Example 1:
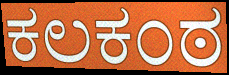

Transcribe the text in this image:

ಕಲಕಂಠ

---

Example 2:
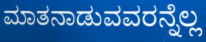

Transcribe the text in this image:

ಮಾತನಾಡುವವರನ್ನೆಲ್ಲ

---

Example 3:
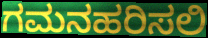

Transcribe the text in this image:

ಗಮನಹರಿಸಲಿ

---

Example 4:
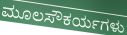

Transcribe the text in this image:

ಮೂಲಸೌಕರ್ಯಗಳು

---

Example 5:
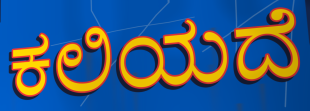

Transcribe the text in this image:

ಕಲಿಯದೆ